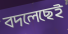
বদলেছেই